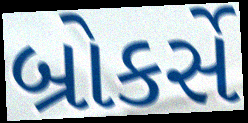
બ્રોકર્સે